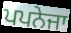
ਪਪਨੇਜਾ